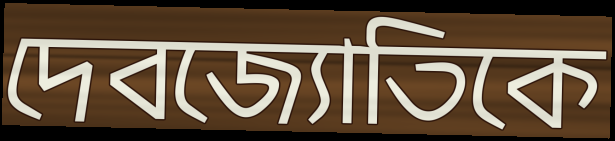
দেবজ্যোতিকে